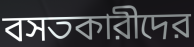
বসতকারীদের